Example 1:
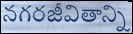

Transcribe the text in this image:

నగరజీవితాన్ని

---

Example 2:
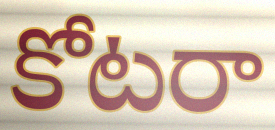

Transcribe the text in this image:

కోటరా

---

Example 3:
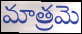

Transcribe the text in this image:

మాత్రమె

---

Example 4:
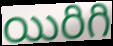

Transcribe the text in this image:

యిరిగి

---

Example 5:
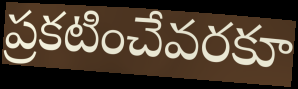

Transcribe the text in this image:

ప్రకటించేవరకూ